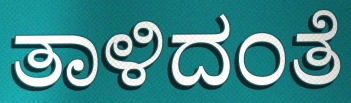
ತಾಳಿದಂತೆ